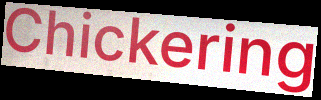
Chickering